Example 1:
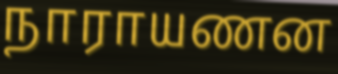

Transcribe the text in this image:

நாராயணன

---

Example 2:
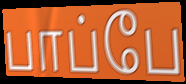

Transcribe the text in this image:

பாப்பே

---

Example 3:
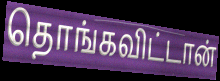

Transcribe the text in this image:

தொங்கவிட்டான்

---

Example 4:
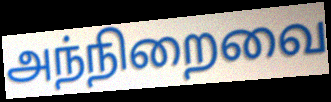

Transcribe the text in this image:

அந்நிறைவை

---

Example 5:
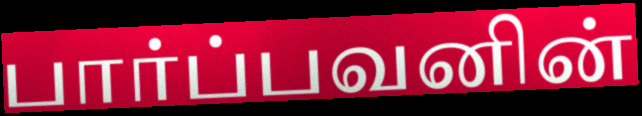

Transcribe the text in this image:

பார்ப்பவனின்